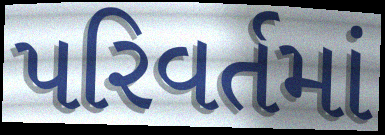
પરિવર્તમાં